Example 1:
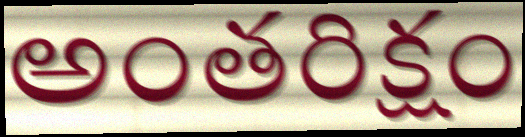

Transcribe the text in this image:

అంతరిక్షం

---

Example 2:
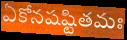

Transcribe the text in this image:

ఏకోనషష్టితమః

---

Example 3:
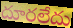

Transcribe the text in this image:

దూరలేదు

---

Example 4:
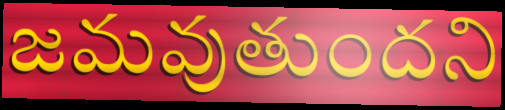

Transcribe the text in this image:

జమవుతుందని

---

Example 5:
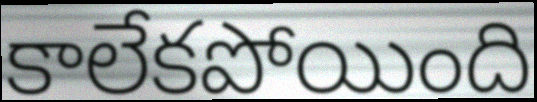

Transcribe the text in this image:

కాలేకపోయింది